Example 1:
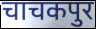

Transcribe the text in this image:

चाचकपुर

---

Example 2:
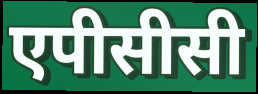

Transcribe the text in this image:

एपीसीसी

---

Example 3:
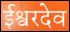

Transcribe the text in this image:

ईश्वरदेव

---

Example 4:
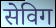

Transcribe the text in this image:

सेविग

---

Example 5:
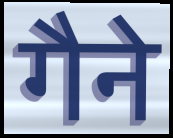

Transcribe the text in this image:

गैने